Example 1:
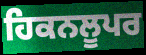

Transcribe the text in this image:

ਹਿਕਨਲੂਪਰ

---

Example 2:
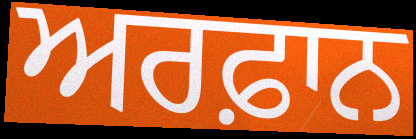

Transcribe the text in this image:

ਅਰਫ਼ਾਨ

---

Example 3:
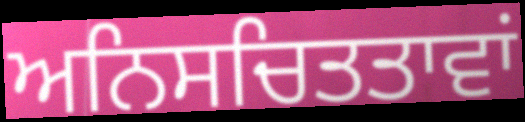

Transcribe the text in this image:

ਅਨਿਸਚਿਤਤਾਵਾਂ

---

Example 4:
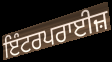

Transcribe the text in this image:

ਇੰਟਰਪਰਾਈਜ਼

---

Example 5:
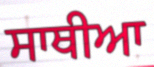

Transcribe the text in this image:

ਸਾਥੀਆ